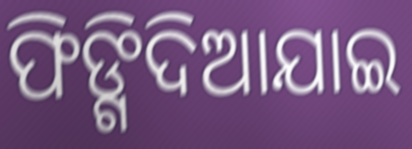
ଫିଙ୍ଗିଦିଆଯାଇ